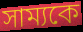
সাম্যকে